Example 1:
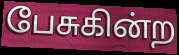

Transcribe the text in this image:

பேசுகின்ற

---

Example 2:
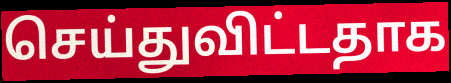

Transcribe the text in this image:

செய்துவிட்டதாக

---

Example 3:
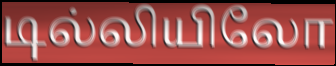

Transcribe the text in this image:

டில்லியிலோ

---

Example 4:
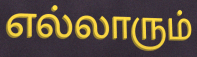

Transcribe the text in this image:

எல்லாரும்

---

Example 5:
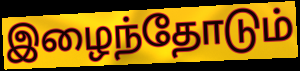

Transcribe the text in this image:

இழைந்தோடும்